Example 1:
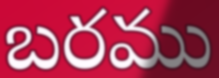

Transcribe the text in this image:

బరము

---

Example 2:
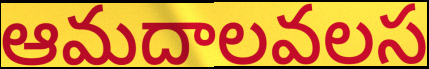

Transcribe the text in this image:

ఆమదాలవలస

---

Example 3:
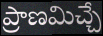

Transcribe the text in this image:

ప్రాణమిచ్చే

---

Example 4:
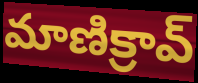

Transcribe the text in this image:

మాణిక్రావ్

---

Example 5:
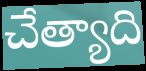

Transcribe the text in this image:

చేత్యాది